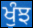
ਖੁੰਝ